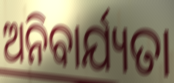
ଅନିବାର୍ଯ୍ୟତା